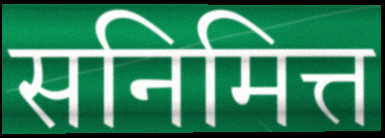
सनिमित्त